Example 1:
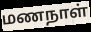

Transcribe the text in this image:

மணநாள்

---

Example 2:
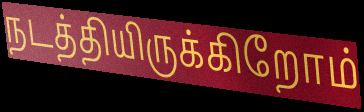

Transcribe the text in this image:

நடத்தியிருக்கிறோம்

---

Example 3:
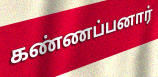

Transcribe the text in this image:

கண்ணப்பனார்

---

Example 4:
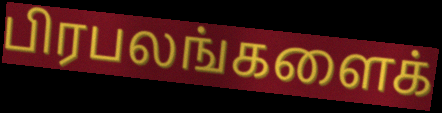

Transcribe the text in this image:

பிரபலங்களைக்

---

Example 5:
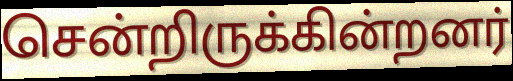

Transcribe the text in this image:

சென்றிருக்கின்றனர்